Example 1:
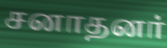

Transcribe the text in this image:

சனாதனர்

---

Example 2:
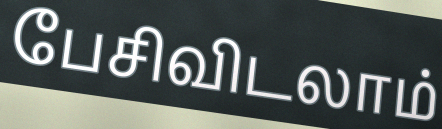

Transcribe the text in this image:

பேசிவிடலாம்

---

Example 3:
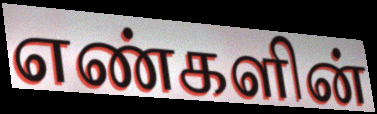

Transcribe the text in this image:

எண்களின்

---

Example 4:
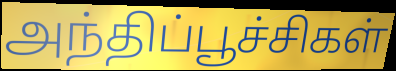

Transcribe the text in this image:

அந்திப்பூச்சிகள்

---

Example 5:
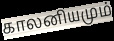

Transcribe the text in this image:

காலனியமும்